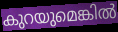
കുറയുമെങ്കിൽ